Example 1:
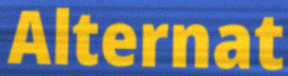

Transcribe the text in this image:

Alternat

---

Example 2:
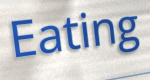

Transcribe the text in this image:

Eating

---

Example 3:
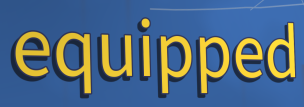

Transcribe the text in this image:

equipped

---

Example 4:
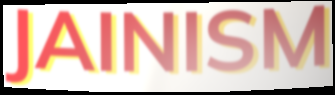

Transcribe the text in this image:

JAINISM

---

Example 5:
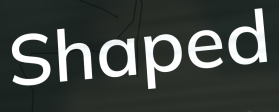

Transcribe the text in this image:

Shaped